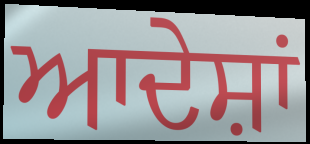
ਆਦੇਸ਼ਾਂ